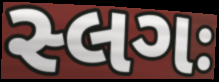
સ્લગઃ